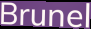
Brunel